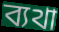
ব্যথা